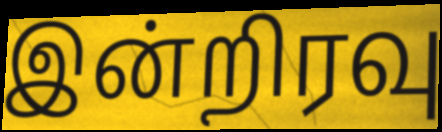
இன்றிரவு